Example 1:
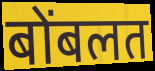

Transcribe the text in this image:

बोंबलत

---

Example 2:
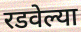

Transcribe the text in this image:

रडवेल्या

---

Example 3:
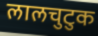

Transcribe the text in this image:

लालचुटुक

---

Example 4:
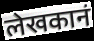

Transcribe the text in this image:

लेखकानं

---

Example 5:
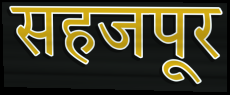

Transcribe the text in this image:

सहजपूर